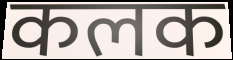
कलक